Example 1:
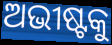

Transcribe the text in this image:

ଅଭୀଷ୍ଟକୁ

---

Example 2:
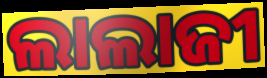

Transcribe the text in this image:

ଲାଲାଜୀ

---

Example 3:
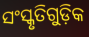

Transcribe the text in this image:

ସଂସ୍କୃତିଗୁଡ଼ିକ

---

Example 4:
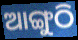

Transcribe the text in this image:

ଆଙ୍ଗୁଠି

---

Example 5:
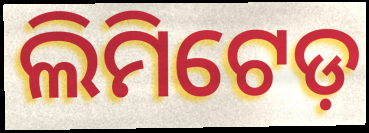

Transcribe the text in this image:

ଲିମିଟେଡ଼